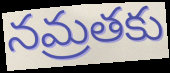
నమ్రతకు